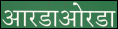
आरडाओरडा